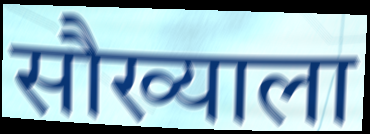
सौख्याला